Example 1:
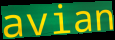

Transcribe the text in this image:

avian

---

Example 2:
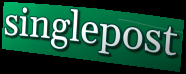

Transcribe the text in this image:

singlepost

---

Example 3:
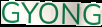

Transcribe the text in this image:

GYONG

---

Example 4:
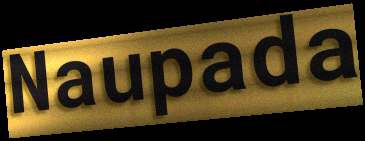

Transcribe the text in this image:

Naupada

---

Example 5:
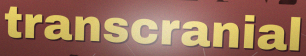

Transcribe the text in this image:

transcranial